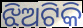
ଝିଅଟିକି